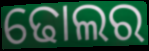
ଢୋଲର